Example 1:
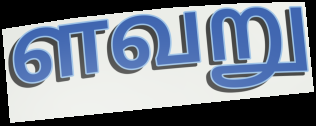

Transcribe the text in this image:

ளவறு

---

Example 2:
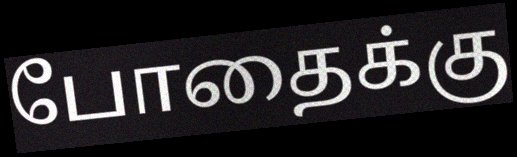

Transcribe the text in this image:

போதைக்கு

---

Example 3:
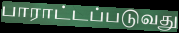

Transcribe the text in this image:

பாராட்டப்படுவது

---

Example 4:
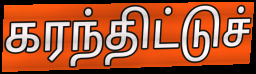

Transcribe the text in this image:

கரந்திட்டுச்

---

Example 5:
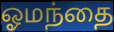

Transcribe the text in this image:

ஓமந்தை